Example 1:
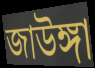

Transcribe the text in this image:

জাউঙ্গা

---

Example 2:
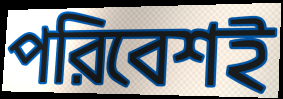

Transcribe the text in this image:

পরিবেশই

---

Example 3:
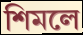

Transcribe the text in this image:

শিমলে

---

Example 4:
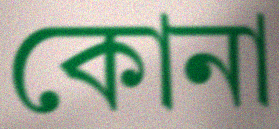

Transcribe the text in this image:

কোনা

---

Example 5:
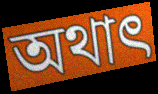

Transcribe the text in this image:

অথাৎ